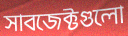
সাবজেক্টগুলো